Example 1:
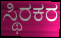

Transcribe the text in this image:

ಸ್ಥಿರಕರ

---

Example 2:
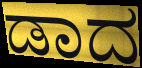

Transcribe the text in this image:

ಡಾದ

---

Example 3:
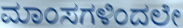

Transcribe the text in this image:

ಮಾಂಸಗಳಿಂದಲೇ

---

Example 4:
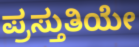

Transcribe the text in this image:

ಪ್ರಸ್ತುತಿಯೇ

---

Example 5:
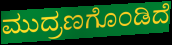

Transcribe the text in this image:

ಮುದ್ರಣಗೊಂಡಿದೆ